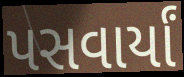
પસવાર્યાં